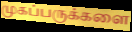
முகப்பருக்களை